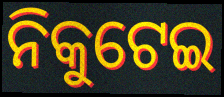
ନିକୁଟେଇ